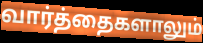
வார்த்தைகளாலும்